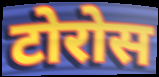
टोरोस